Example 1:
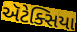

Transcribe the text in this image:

ઍટેક્સિયા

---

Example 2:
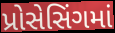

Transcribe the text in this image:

પ્રોસેસિંગમાં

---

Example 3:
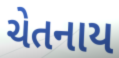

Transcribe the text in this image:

ચેતનાય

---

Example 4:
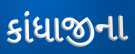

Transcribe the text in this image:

કાંધાજીના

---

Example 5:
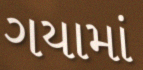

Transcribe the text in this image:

ગયામાં